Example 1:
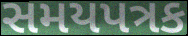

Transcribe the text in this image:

સમયપત્રક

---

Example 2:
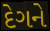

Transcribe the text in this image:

દેગને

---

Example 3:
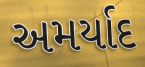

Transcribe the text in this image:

અમર્યાદ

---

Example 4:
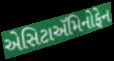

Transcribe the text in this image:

એસિટાઍમિનોફેન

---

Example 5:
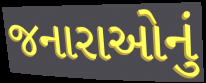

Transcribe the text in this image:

જનારાઓનું